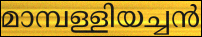
മാമ്പള്ളിയച്ചൻ